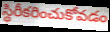
స్థిరీకరించుకోవడం